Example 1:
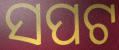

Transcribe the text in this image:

ସପଟ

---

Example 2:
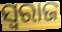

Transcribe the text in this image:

ସ୍ବରାଜ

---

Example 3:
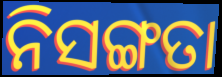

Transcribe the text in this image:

ନିସଙ୍ଗତା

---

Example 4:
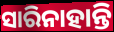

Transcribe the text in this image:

ସାରିନାହାନ୍ତି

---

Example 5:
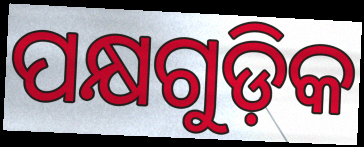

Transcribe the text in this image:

ପକ୍ଷଗୁଡ଼ିକ